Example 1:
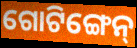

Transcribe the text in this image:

ଗୋଟିଙ୍ଗେନ୍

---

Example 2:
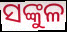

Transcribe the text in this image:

ସଙ୍କୁଳ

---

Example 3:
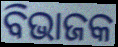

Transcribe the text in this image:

ବିଭାଜକ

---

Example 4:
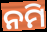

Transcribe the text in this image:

ନମି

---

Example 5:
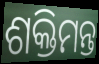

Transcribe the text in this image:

ଶକ୍ତିମନ୍ତ